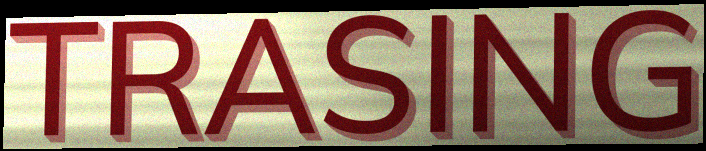
TRASING